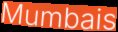
Mumbais